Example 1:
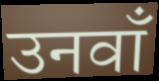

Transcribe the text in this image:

उनवाँ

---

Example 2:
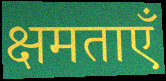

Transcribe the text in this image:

क्षमताएँ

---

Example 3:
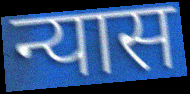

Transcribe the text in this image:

न्यास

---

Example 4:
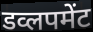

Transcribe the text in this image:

डव्लपमेंट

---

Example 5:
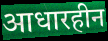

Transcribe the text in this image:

आधारहीन